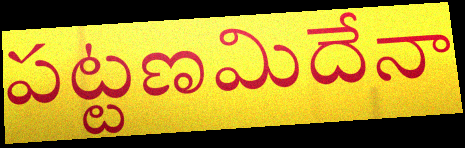
పట్టణమిదేనా